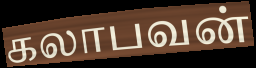
கலாபவன்